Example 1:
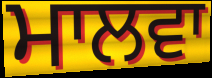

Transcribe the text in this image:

ਮਾਲਵਾ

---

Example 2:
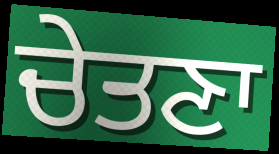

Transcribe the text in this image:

ਚੇਤਣਾ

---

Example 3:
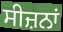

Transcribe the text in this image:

ਸੀਜ਼ਨਾਂ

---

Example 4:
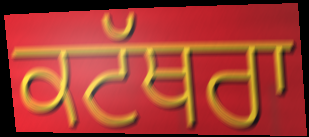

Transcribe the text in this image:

ਕਟੱਥਰਾ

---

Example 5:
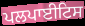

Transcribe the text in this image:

ਪਲਪਾਈਟਿਸ